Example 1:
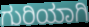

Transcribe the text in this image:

ಗುರಿಯಾಗಿ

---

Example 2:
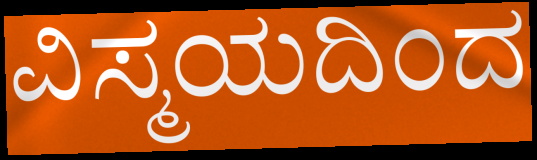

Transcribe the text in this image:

ವಿಸ್ಮಯದಿಂದ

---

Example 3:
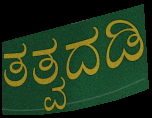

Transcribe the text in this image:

ತತ್ವದಡಿ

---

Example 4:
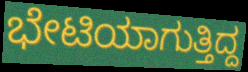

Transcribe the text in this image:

ಭೇಟಿಯಾಗುತ್ತಿದ್ದ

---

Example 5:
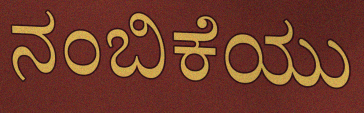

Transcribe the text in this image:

ನಂಬಿಕೆಯು